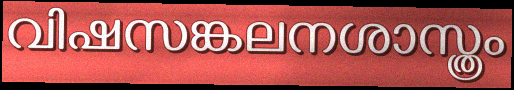
വിഷസങ്കലനശാസ്ത്രം